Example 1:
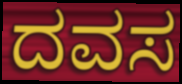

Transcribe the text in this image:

ದವಸ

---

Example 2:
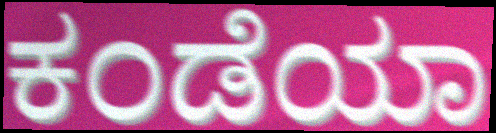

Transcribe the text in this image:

ಕಂಡೆಯಾ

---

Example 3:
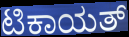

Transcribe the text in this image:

ಟಿಕಾಯತ್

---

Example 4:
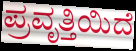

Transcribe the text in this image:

ಪ್ರವೃತ್ತಿಯಿದೆ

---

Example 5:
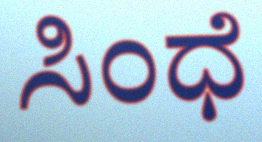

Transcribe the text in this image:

ಸಿಂಧೆ